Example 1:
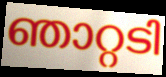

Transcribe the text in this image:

ഞാറ്റടി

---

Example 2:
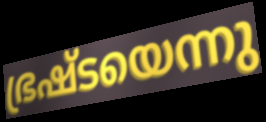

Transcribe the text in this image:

ഭ്രഷ്ടയെന്നു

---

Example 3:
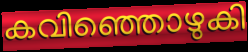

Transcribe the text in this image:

കവിഞ്ഞൊഴുകി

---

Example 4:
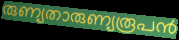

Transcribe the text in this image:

രുണ്യതാരുണ്യരൂപൻ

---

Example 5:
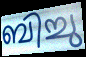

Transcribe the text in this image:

ബിച്ചു